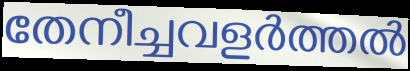
തേനീച്ചവളർത്തൽ